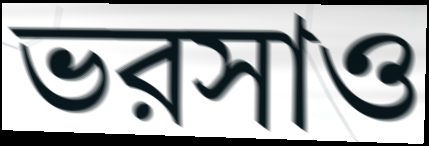
ভরসাও